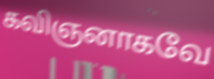
கவிஞனாகவே